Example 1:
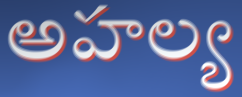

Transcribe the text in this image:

అహల్య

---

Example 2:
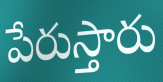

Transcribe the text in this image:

పేరుస్తారు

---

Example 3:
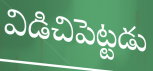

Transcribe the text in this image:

విడిచిపెట్టడు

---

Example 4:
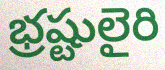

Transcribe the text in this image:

భ్రష్టులైరి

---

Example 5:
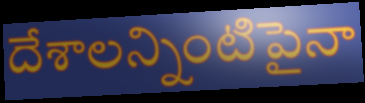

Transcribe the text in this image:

దేశాలన్నింటిపైనా